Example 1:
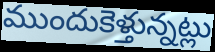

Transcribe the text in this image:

ముందుకెళ్తున్నట్లు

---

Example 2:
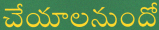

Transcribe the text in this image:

చేయాలనుందో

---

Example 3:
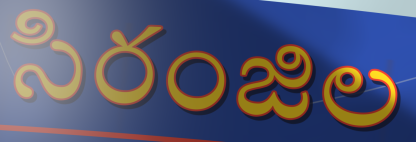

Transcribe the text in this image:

సిరంజిల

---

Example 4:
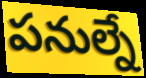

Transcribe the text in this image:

పనుల్నే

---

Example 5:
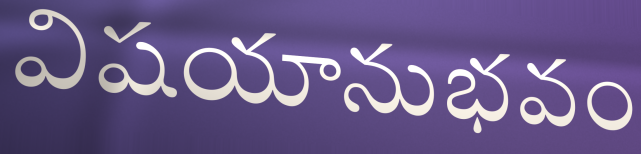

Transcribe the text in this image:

విషయానుభవం